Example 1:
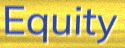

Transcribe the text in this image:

Equity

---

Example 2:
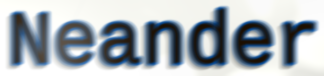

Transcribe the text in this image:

Neander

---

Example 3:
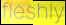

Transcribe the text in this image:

fleshly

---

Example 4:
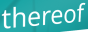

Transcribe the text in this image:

thereof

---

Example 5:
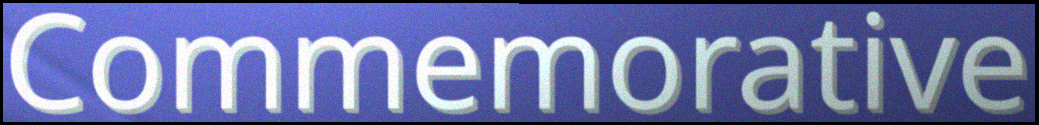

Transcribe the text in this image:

Commemorative